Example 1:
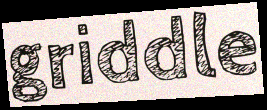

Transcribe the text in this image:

griddle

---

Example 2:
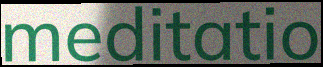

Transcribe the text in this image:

meditatio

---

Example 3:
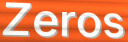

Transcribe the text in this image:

Zeros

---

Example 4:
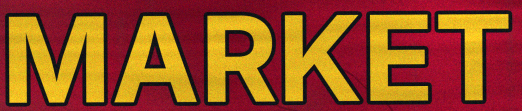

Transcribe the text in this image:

MARKET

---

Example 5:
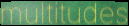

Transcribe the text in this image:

multitudes